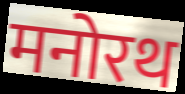
मनोरथ